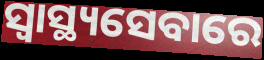
ସ୍ୱାସ୍ଥ୍ୟସେବାରେ